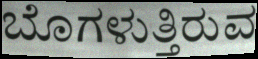
ಬೊಗಳುತ್ತಿರುವ